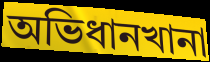
অভিধানখানা